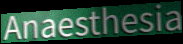
Anaesthesia